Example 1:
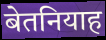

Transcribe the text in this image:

बेतनियाह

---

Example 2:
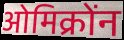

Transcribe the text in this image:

ओमिक्रोंन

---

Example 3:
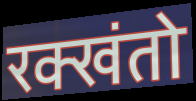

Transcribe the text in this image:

रक्खंतो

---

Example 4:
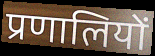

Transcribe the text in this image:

प्रणालियों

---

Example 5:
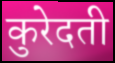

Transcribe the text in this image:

कुरेदती